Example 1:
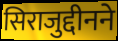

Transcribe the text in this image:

सिराजुद्दीनने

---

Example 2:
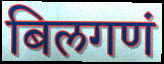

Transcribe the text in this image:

बिलगणं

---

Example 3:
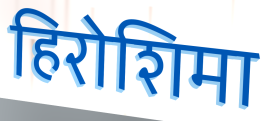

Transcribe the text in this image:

हिरोशिमा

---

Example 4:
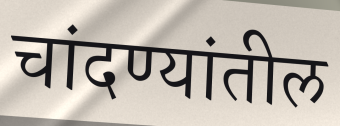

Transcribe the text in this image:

चांदण्यांतील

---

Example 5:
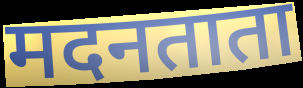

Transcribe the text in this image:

मदनताता